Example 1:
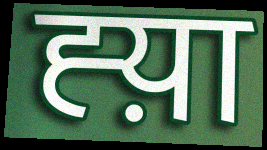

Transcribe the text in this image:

ह्य़ा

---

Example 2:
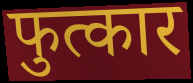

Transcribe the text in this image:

फुत्कार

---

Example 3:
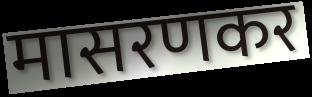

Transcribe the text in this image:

मासरणकर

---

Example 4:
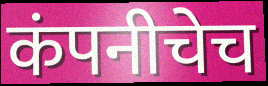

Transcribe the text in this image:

कंपनीचेच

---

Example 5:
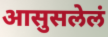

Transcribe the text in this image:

आसुसलेलं